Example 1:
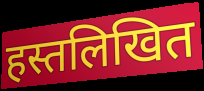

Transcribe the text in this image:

हस्तलिखित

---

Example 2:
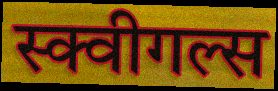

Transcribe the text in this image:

स्क्वीगल्स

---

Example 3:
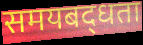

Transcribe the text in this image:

समयबद्धता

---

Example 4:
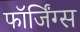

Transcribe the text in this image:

फॉर्जिंग्स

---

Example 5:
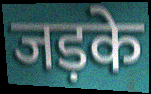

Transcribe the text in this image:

जड़के